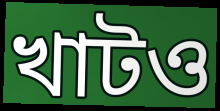
খাটও